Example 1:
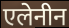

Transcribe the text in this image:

एलेनीन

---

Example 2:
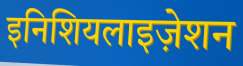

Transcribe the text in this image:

इनिशियलाइज़ेशन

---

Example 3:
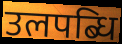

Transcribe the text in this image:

उलपब्धि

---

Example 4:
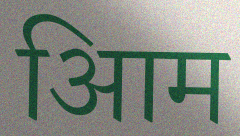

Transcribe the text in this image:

आिम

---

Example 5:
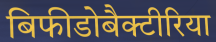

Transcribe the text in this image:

बिफीडोबैक्टीरिया